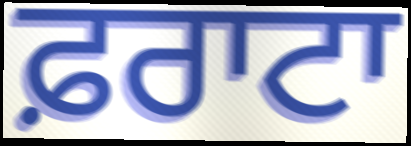
ਫ਼ਰਾਟਾ